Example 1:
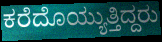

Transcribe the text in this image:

ಕರೆದೊಯ್ಯುತ್ತಿದ್ದರು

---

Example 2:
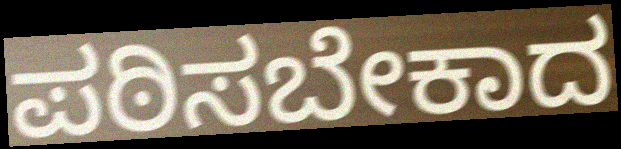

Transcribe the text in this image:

ಪಠಿಸಬೇಕಾದ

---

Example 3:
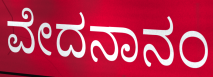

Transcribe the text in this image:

ವೇದನಾನಂ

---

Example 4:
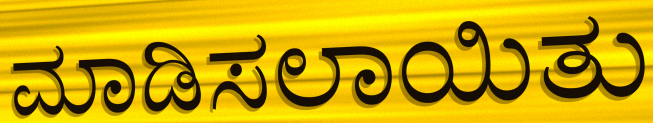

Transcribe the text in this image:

ಮಾಡಿಸಲಾಯಿತು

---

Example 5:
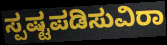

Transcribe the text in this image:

ಸ್ಪಷ್ಟಪಡಿಸುವಿರಾ